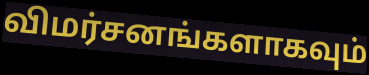
விமர்சனங்களாகவும்